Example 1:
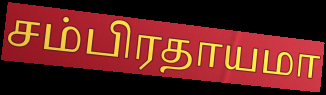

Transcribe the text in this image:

சம்பிரதாயமா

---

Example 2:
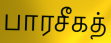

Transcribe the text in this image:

பாரசீகத்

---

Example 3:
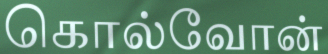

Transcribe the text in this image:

கொல்வோன்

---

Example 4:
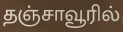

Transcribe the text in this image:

தஞ்சாவூரில்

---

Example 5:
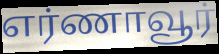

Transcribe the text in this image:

எர்ணாவூர்